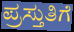
ಪ್ರಸ್ತುತಿಗೆ